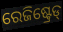
ରେଜିଷ୍ଟ୍ରେଡ୍